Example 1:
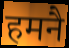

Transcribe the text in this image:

हमनै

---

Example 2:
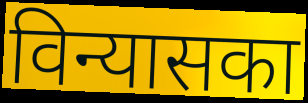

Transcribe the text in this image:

विन्यासका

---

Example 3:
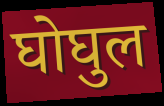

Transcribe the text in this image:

घोघुल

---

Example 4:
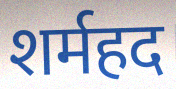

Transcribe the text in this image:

शर्महद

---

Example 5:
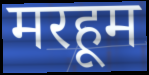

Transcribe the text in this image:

मरहूम